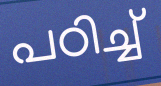
പഠിച്ച്